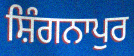
ਸ਼ਿੰਗਨਾਪੁਰ